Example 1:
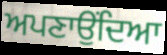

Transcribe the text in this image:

ਅਪਣਾਉਂਦਿਆ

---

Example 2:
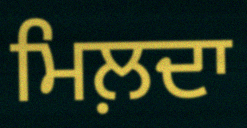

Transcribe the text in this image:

ਮਿਲ਼ਦਾ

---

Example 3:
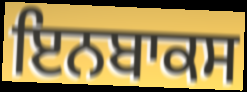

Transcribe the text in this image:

ਇਨਬਾਕਸ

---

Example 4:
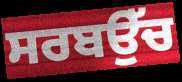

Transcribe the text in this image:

ਸਰਬਉੱਚ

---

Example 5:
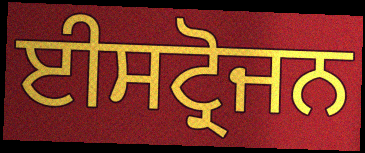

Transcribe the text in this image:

ਈਸਟ੍ਰੋਜਨ